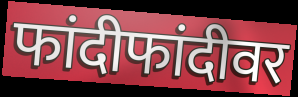
फांदीफांदीवर